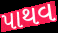
પાથવ